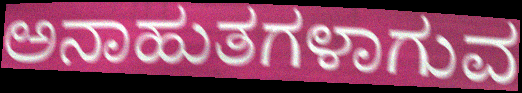
ಅನಾಹುತಗಳಾಗುವ